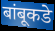
बांबूकडे